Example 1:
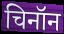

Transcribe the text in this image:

चिनॉन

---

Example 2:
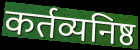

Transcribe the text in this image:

कर्तव्यनिष्ठ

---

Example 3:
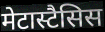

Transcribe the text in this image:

मेटास्टैसिस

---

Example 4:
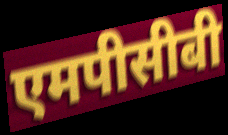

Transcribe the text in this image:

एमपीसीबी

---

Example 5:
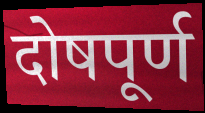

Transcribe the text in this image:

दोषपूर्ण